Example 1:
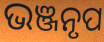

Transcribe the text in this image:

ଭଞ୍ଜନୃପ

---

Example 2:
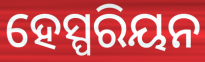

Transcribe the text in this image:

ହେସ୍ପରିୟନ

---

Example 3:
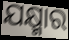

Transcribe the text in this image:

ଯକ୍ଷ୍ମାର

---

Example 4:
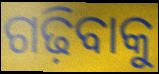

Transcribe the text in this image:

ଗଢ଼ିବାକୁ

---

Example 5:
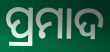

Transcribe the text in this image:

ପ୍ରମାଦ